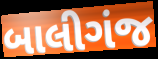
બાલીગંજ